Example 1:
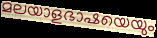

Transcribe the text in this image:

മലയാളഭാഷയെയും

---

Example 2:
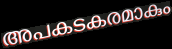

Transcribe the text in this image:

അപകടകരമാകും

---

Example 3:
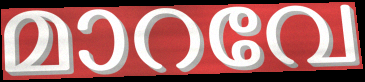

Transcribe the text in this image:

മാറവേ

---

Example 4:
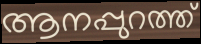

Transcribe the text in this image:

ആനപ്പുറത്ത്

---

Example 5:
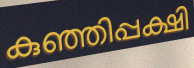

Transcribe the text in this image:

കുഞ്ഞിപ്പക്ഷി